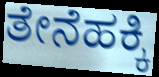
ತೇನೆಹಕ್ಕಿ